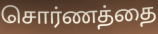
சொர்ணத்தை